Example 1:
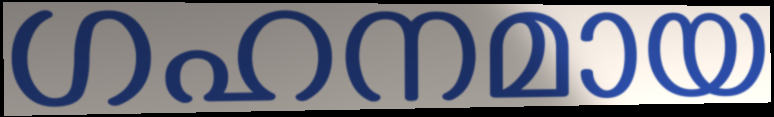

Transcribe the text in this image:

ഗഹനമായ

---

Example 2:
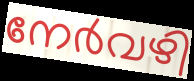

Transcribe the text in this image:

നേർവഴി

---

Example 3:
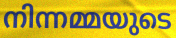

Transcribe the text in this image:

നിന്നമ്മയുടെ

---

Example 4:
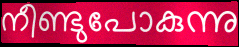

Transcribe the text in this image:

നീണ്ടുപോകുന്നു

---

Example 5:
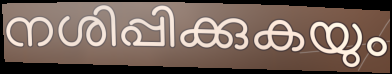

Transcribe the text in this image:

നശിപ്പിക്കുകയും